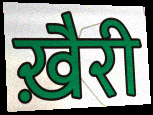
ख़ैरी